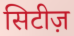
सिटीज़